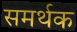
समर्थक